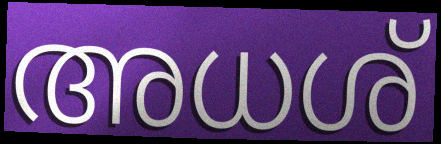
അധശ്